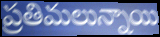
ప్రతిమలున్నాయి